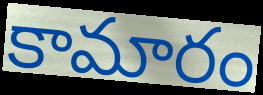
కామారం